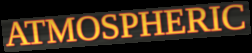
ATMOSPHERIC